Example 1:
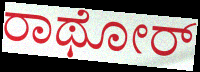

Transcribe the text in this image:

ರಾಥೋರ್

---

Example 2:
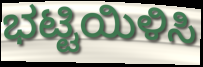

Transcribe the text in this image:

ಭಟ್ಟಿಯಿಳಿಸಿ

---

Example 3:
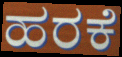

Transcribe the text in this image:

ಹರಕೆ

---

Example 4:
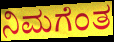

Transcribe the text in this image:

ನಿಮಗೆಂತ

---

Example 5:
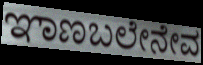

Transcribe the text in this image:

ಞಾಣಬಲೇನೇವ